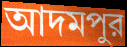
আদমপুর